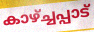
കാഴ്ച്ചപ്പാട്